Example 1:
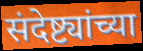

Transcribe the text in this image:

संदेष्ट्यांच्या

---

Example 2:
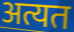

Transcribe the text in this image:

अत्यत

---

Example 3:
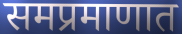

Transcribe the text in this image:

समप्रमाणात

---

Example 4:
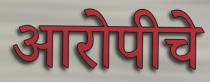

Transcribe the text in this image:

आरोपीचे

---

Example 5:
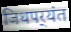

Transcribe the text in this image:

जिथपर्यंत